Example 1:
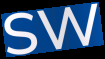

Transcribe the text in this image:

SW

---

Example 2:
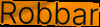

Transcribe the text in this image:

Robbar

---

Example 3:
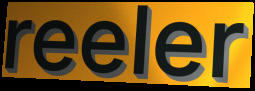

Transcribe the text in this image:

reeler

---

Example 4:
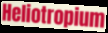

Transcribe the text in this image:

Heliotropium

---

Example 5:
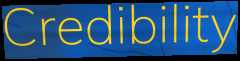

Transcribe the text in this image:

Credibility